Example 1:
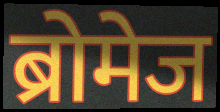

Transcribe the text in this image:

ब्रोमेज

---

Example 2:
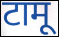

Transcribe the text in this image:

टामू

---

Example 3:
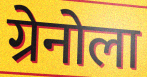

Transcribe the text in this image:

ग्रेनोला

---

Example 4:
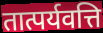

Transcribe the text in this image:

तात्पर्यवत्ति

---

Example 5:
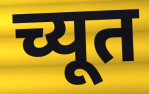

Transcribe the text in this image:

च्यूत